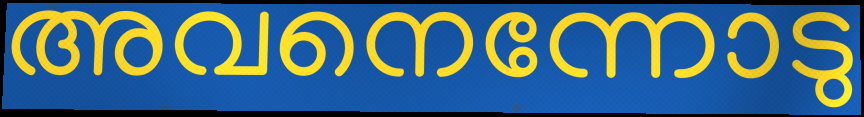
അവനെന്നോടു